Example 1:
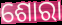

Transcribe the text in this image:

ଶୋରା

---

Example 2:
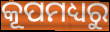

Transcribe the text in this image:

କୂପମଧ୍ୟରୁ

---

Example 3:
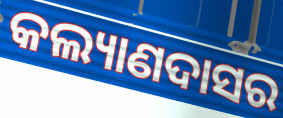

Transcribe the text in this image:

କଲ୍ୟାଣଦାସର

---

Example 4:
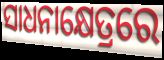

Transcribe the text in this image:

ସାଧନାକ୍ଷେତ୍ରରେ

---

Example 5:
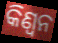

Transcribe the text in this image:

କିଣ୍ୱନ